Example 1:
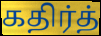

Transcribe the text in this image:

கதிர்த்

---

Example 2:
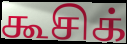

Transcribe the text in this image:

கூசிக்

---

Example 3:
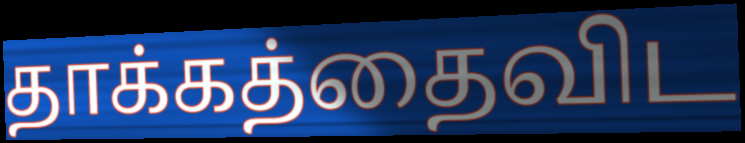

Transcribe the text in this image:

தாக்கத்தைவிட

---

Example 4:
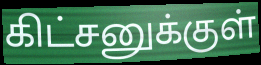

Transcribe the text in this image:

கிட்சனுக்குள்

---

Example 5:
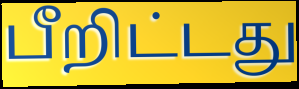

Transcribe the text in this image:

பீறிட்டது